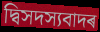
দ্বিসদস্যবাদৰ